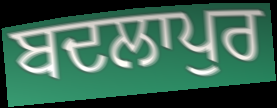
ਬਦਲਾਪੁਰ